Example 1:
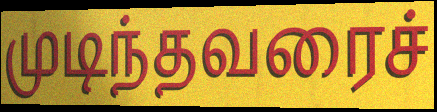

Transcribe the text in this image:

முடிந்தவரைச்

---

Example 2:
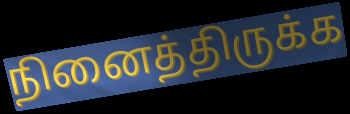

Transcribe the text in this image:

நினைத்திருக்க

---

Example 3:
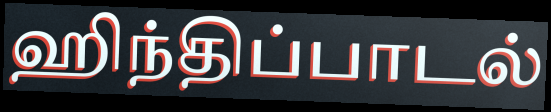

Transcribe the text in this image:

ஹிந்திப்பாடல்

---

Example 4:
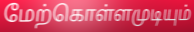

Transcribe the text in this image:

மேற்கொள்ளமுடியும்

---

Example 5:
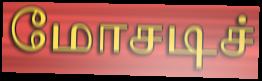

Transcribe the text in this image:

மோசடிச்